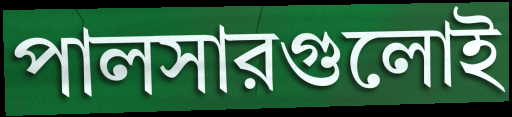
পালসারগুলোই